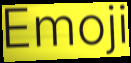
Emoji